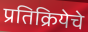
प्रतिक्रियेचे